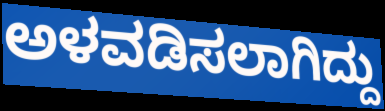
ಅಳವಡಿಸಲಾಗಿದ್ದು